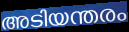
അടിയന്തരം